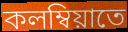
কলম্বিয়াতে